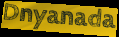
Dnyanada